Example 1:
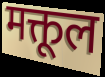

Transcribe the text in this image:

मक्तूल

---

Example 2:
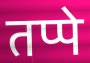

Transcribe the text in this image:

तप्पे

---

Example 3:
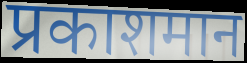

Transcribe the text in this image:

प्रकाशमान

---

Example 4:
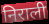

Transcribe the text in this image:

निराली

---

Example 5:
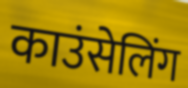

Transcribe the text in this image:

काउंसेलिंग